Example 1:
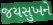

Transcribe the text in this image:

જયસુખને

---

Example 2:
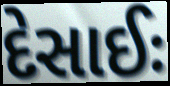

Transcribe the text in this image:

દેસાઈઃ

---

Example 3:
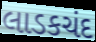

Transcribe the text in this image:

લાડકચંદ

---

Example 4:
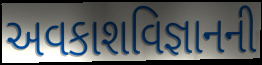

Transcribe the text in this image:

અવકાશવિજ્ઞાનની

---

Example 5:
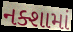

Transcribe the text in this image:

નક્શામાં